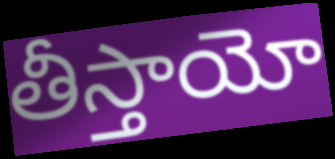
తీస్తాయో